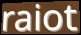
raiot